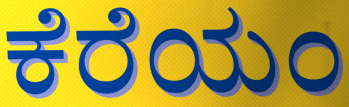
ಕೆರೆಯಂ